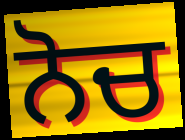
ਨੋਚ